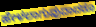
ಹೇಳಲಾಗುವುದಾದರೂ